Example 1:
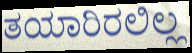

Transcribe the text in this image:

ತಯಾರಿರಲಿಲ್ಲ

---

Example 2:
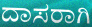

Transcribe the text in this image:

ದಾಸರಾಗಿ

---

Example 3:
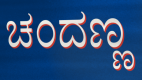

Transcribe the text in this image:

ಚಂದಣ್ಣ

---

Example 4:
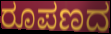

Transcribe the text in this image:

ರೂಪಣದ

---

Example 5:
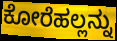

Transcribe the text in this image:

ಕೋರೆಹಲ್ಲನ್ನು